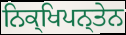
ਨਿਕ੍ਖਿਪਨ੍ਤੇਨ